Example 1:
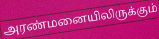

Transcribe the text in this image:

அரண்மனையிலிருக்கும்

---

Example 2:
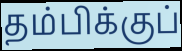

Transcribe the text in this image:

தம்பிக்குப்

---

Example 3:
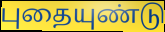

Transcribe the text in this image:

புதையுண்டு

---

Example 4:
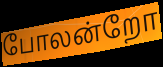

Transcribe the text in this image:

போலன்றோ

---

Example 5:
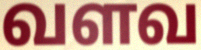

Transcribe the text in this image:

வளவ